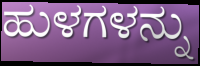
ಹುಳಗಳನ್ನು